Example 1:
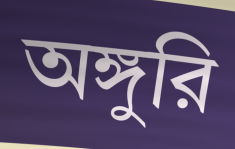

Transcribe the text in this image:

অঙ্গুরি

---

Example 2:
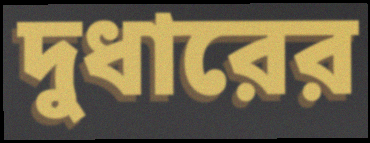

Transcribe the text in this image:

দুধারের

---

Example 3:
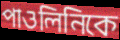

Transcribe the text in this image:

পাওলিনিকে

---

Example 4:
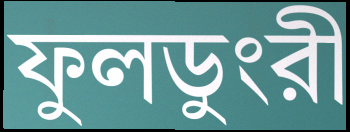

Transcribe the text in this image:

ফুলডুংরী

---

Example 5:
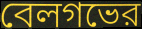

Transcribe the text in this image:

বেলগভের